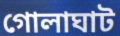
গোলাঘাট